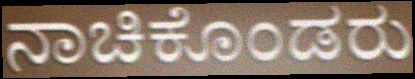
ನಾಚಿಕೊಂಡರು